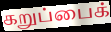
கறுப்பைக்